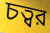
চত্বর